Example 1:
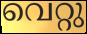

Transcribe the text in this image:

വെറ്റു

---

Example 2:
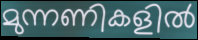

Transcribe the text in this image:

മുന്നണികളിൽ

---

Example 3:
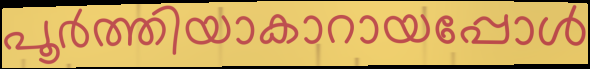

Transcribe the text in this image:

പൂർത്തിയാകാറായപ്പോൾ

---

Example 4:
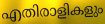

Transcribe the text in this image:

എതിരാളികളും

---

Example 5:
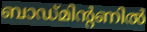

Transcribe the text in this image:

ബാഡ്മിന്റണിൽ